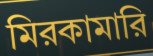
মিরকামারি